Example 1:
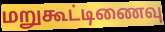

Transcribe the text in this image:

மறுகூட்டிணைவு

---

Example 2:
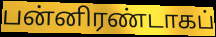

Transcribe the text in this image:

பன்னிரண்டாகப்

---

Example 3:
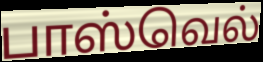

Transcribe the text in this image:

பாஸ்வெல்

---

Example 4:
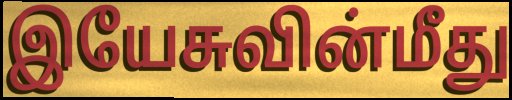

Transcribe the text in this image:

இயேசுவின்மீது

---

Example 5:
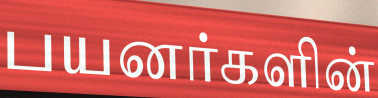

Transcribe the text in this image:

பயனர்களின்